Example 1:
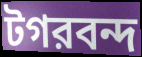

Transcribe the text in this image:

টগরবন্দ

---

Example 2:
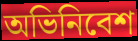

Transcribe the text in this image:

অভিনিবেশ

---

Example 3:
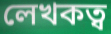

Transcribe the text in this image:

লেখকত্ব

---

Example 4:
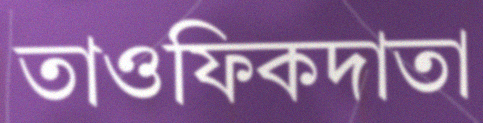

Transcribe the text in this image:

তাওফিকদাতা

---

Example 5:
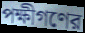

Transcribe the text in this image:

পক্ষীগণের